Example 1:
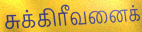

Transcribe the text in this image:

சுக்கிரீவனைக்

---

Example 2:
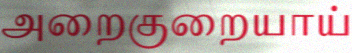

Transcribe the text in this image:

அறைகுறையாய்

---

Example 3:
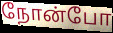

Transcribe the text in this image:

நோன்போ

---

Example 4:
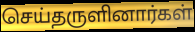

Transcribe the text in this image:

செய்தருளினார்கள்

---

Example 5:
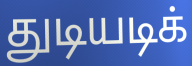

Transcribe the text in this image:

துடியடிக்